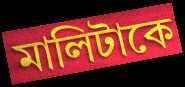
মালিটাকে